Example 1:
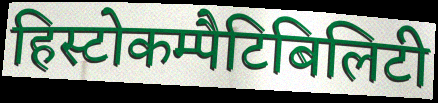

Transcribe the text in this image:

हिस्टोकम्पैटिबिलिटी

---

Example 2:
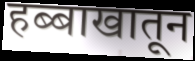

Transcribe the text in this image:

हब्बाखातून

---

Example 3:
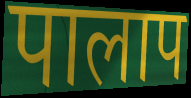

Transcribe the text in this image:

पालाप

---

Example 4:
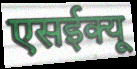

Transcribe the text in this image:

एसईक्यू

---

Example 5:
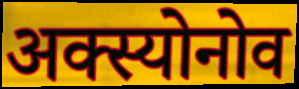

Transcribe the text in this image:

अक्स्योनोव